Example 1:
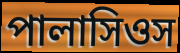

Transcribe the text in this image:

পালাসিওস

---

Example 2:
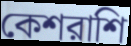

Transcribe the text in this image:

কেশরাশি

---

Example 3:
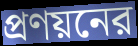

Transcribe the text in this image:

প্রণয়নের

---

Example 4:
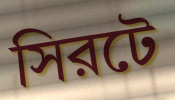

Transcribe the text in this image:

সিরটে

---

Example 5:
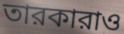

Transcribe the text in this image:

তারকারাও